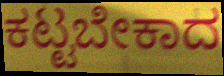
ಕಟ್ಟಬೇಕಾದ